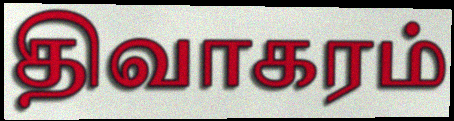
திவாகரம்